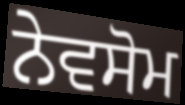
ਨੇਵਸੋਮ